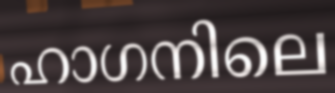
ഹാഗനിലെ